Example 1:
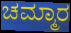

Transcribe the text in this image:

ಚಮ್ಮಾರ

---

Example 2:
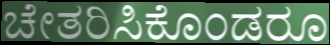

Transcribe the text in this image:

ಚೇತರಿಸಿಕೊಂಡರೂ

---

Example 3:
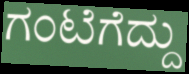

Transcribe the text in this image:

ಗಂಟೆಗೆದ್ದು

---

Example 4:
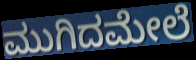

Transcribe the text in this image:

ಮುಗಿದಮೇಲೆ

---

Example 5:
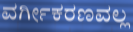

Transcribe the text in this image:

ವರ್ಗೀಕರಣವಲ್ಲ